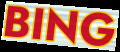
BING